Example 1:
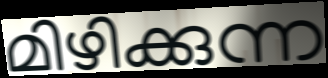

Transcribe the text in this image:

മിഴിക്കുന്ന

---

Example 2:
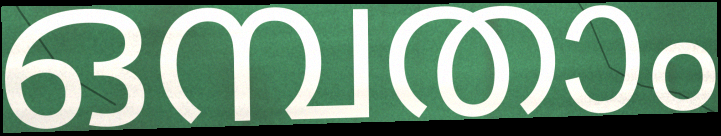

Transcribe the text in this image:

ഒമ്പതാം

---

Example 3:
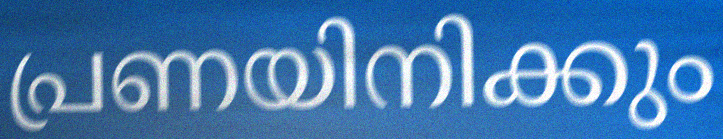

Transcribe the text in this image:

പ്രണയിനിക്കും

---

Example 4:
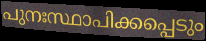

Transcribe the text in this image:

പുനഃസ്ഥാപിക്കപ്പെടും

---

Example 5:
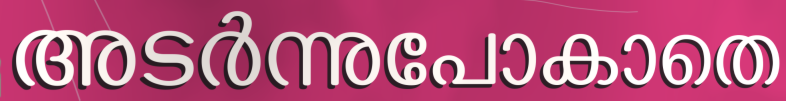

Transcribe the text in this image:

അടർന്നുപോകാതെ